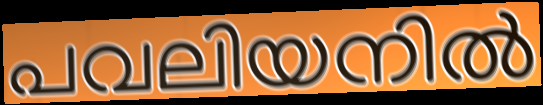
പവലിയനിൽ